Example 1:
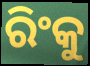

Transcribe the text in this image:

ରିଂକୁ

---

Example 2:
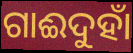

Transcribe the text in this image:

ଗାଈଦୁହାଁ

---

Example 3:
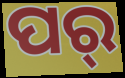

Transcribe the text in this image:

ପର୍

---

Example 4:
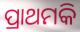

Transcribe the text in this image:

ପ୍ରାଥମକି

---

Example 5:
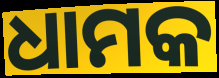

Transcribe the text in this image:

ଧାମକ